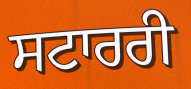
ਸਟਾਰਰੀ